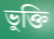
ভুক্তি